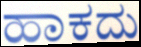
ಹಾಕದು